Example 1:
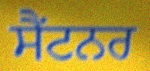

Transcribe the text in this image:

ਸੈਂਟਨਰ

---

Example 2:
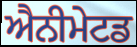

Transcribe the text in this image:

ਐਨੀਮੇਟਡ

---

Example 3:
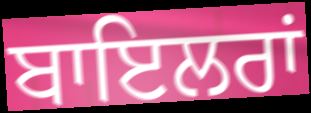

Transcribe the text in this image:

ਬਾਇਲਰਾਂ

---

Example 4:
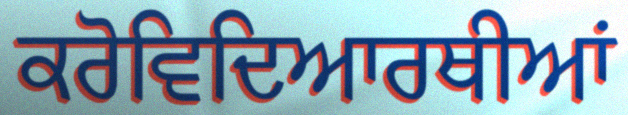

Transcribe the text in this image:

ਕਰੋਵਿਦਿਆਰਥੀਆਂ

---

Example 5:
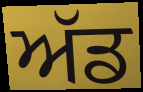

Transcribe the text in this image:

ਅੱਡ